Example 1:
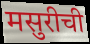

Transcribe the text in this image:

मसुरीची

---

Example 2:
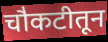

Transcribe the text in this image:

चौकटीतून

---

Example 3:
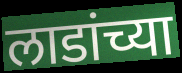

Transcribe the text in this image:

लाडांच्या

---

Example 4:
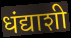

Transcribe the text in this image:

धंद्याशी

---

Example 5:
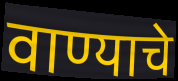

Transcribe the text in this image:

वाण्याचे